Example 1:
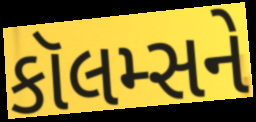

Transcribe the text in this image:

કૉલમ્સને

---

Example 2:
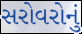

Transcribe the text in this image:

સરોવરોનું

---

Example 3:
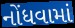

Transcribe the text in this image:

નોંધવામાં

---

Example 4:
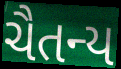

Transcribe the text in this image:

ચૈતન્ય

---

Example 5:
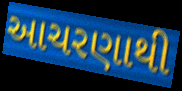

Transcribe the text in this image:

આચરણાથી